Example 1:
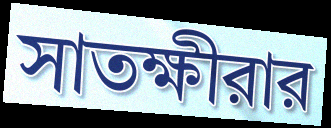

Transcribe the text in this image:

সাতক্ষীরার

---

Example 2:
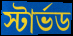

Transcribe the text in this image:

স্টার্ভড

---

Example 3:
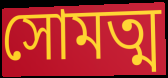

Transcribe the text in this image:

সোমত্ম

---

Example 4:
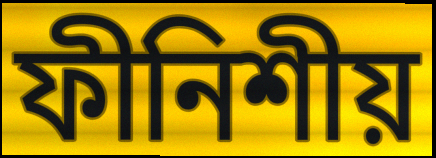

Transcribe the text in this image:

ফীনিশীয়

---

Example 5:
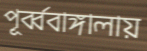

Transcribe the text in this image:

পূর্ব্ববাঙ্গালায়